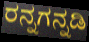
ರನ್ನಗನ್ನಡಿ